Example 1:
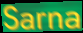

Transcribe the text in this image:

Sarna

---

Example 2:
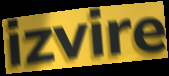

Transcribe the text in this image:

izvire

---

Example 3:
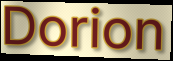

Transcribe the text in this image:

Dorion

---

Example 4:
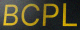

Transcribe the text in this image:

BCPL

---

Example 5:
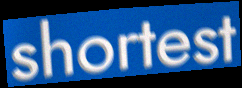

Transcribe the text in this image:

shortest